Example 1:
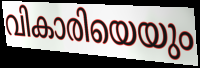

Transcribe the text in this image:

വികാരിയെയും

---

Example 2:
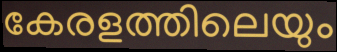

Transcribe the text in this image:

കേരളത്തിലെയും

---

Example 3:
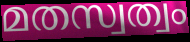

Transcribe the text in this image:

മതസ്വത്വം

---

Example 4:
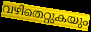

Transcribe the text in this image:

വഴിതെറ്റുകയും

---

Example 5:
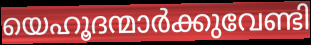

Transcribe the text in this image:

യെഹൂദന്മാർക്കുവേണ്ടി